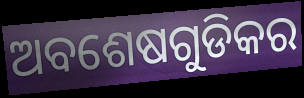
ଅବଶେଷଗୁଡିକର